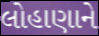
લોહાણાને